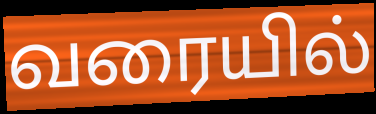
வரையில்